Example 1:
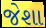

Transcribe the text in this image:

જેશા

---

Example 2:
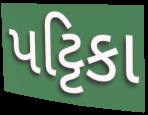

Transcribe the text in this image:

પટ્ટિકા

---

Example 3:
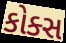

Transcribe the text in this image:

કોક્સ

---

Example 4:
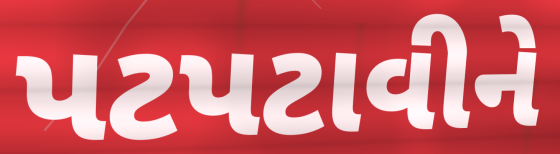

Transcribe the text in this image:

પટપટાવીને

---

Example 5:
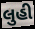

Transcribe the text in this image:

લુહી